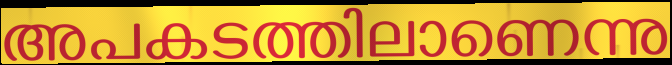
അപകടത്തിലാണെന്നു